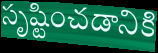
సృష్టించడానికి